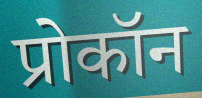
प्रोकॉन